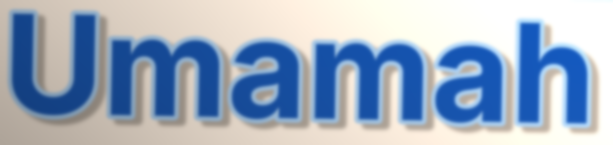
Umamah